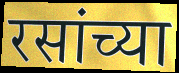
रसांच्या